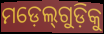
ମଡ଼େଲ୍‌ଗୁଡ଼ିକୁ